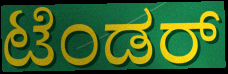
ಟೆಂಡರ್